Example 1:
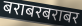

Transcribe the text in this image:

बराबरबराबर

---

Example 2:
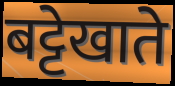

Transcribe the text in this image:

बट्टेखाते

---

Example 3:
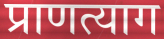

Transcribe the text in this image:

प्राणत्याग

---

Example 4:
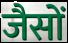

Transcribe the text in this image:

जैसों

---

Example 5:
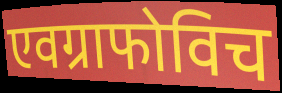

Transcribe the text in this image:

एवग्राफोविच